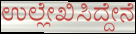
ಉಲ್ಲೇಖಿಸಿದ್ದೇನೆ